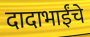
दादाभाईंचे